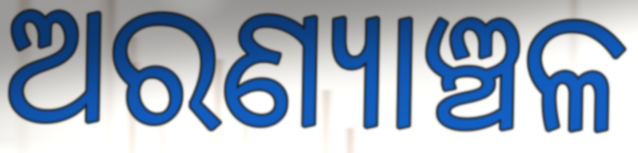
ଅରଣ୍ୟାଞ୍ଚଳ